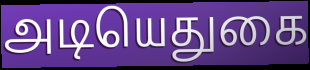
அடியெதுகை